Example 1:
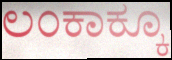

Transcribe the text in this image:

ಲಂಕಾಕ್ಕೂ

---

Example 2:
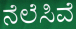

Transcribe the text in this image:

ನೆಲೆಸಿವೆ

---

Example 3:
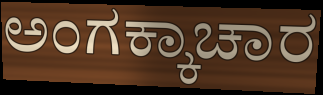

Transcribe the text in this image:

ಅಂಗಕ್ಕಾಚಾರ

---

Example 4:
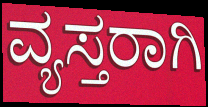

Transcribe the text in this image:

ವ್ಯಸ್ತರಾಗಿ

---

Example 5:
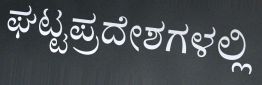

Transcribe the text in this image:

ಘಟ್ಟಪ್ರದೇಶಗಳಲ್ಲಿ